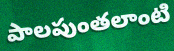
పాలపుంతలాంటి